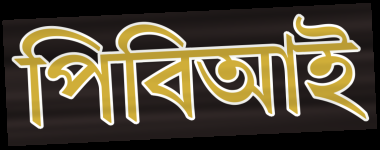
পিবিআই